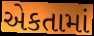
એકતામાં